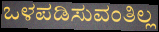
ಒಳಪಡಿಸುವಂತಿಲ್ಲ